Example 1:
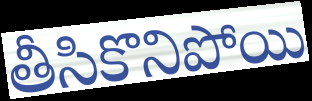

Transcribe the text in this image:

తీసికొనిపోయి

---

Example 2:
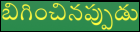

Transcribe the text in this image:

బిగించినప్పుడు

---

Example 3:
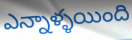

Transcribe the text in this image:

ఎన్నాళ్ళయింది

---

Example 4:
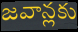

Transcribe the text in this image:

జవాన్లకు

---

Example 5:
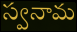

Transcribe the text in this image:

స్వనామ